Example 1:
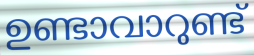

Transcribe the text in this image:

ഉണ്ടാവാറുണ്ട്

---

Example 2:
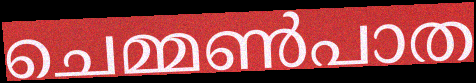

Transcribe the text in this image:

ചെമ്മൺപാത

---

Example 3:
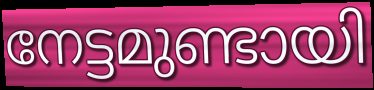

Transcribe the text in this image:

നേട്ടമുണ്ടായി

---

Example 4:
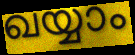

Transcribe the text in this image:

ഖയ്യാം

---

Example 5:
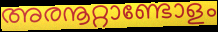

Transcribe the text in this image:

അരനൂറ്റാണ്ടോളം